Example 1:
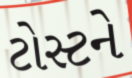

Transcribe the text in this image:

ટોસ્ટને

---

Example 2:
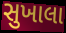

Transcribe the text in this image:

સુખાલા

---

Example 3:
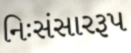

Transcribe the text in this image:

નિઃસંસારરૂપ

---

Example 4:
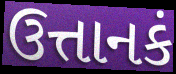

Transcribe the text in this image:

ઉત્તાનકં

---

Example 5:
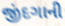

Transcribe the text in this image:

જીંદગાની